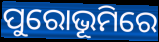
ପୁରୋଭୂମିରେ